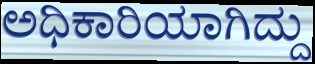
ಅಧಿಕಾರಿಯಾಗಿದ್ದು